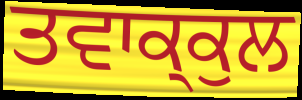
ਤਵਾਕ੍ਕੁਲ